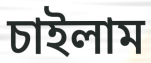
চাইলাম